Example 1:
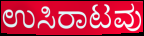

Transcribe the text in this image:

ಉಸಿರಾಟವು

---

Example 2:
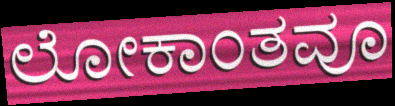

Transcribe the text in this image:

ಲೋಕಾಂತವೂ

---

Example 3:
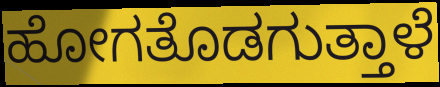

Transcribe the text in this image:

ಹೋಗತೊಡಗುತ್ತಾಳೆ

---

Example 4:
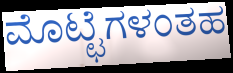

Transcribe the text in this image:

ಮೊಟ್ಟೆಗಳಂತಹ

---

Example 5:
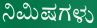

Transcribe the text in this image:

ನಿಮಿಷಗಳು